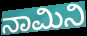
ನಾಮಿನಿ